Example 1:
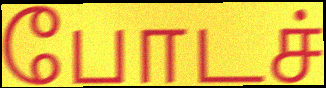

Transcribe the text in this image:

போடச்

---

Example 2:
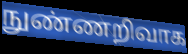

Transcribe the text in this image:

நுண்ணறிவாக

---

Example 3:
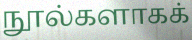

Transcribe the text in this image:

நூல்களாகக்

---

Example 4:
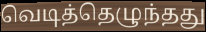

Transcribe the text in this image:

வெடித்தெழுந்தது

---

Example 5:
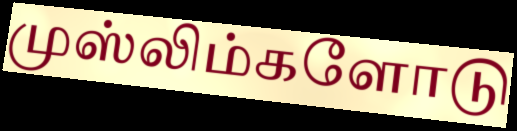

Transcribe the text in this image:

முஸ்லிம்களோடு